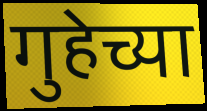
गुहेच्या